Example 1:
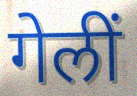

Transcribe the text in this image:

गेलीं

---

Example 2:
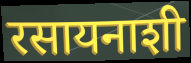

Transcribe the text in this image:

रसायनाशी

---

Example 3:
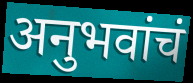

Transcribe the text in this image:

अनुभवांचं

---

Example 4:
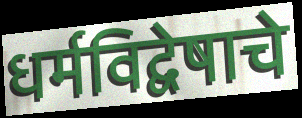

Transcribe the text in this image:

धर्मविद्वेषाचे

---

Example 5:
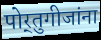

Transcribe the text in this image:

पोर्तुगीजांना